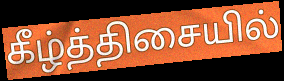
கீழ்த்திசையில்